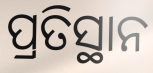
ପ୍ରତିସ୍ଥାନ